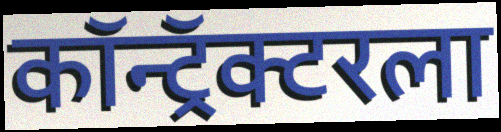
कॉन्ट्रॅक्टरला